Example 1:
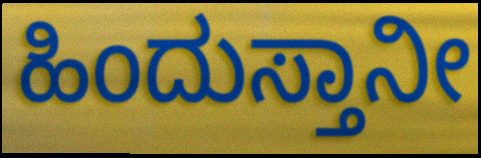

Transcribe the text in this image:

ಹಿಂದುಸ್ತಾನೀ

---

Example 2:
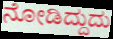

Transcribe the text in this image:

ನೋಡಿದ್ದುದು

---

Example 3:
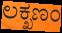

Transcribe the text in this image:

ಲಕ್ಖಣಂ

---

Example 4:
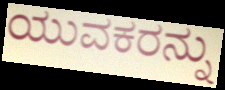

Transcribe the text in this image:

ಯುವಕರನ್ನು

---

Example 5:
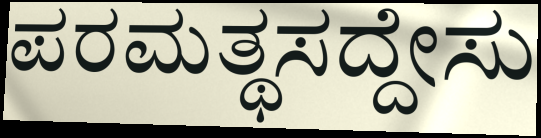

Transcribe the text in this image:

ಪರಮತ್ಥಸದ್ದೇಸು